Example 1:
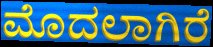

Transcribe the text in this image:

ಮೊದಲಾಗಿರೆ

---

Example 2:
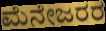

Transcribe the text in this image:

ಮೆನೇಜರರ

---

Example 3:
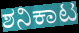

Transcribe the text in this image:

ಶನಿಕಾಟ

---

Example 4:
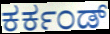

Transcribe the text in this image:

ಕರ್ಕಂಡ್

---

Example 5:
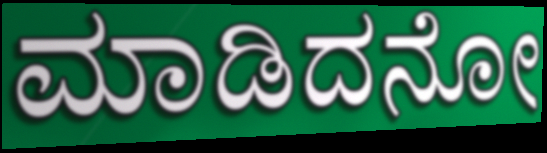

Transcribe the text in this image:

ಮಾಡಿದನೋ